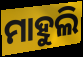
ମାହୁଲି